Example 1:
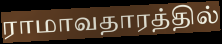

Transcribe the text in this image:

ராமாவதாரத்தில்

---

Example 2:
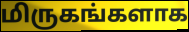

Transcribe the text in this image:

மிருகங்களாக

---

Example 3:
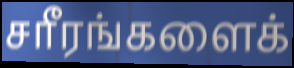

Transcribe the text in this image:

சரீரங்களைக்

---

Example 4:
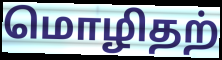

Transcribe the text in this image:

மொழிதற்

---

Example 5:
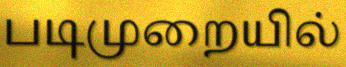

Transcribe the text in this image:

படிமுறையில்